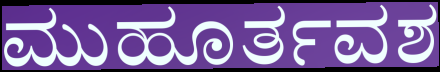
ಮುಹೂರ್ತವಶ